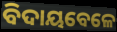
ବିଦାୟବେଳେ